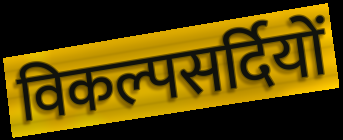
विकल्पसर्दियों